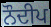
ਨੌਦੀਪ